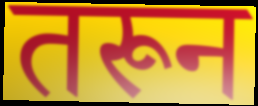
तरून